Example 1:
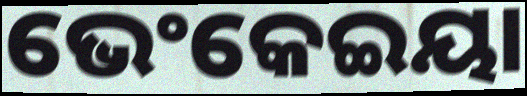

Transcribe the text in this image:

ଭେଂକେଇୟା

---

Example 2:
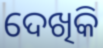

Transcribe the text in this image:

ଦେଖିକି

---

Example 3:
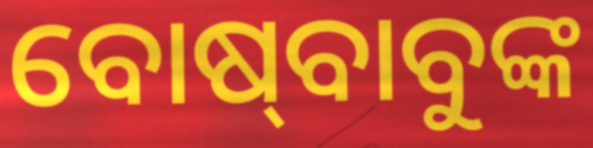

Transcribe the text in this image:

ବୋଷ୍‍ବାବୁଙ୍କ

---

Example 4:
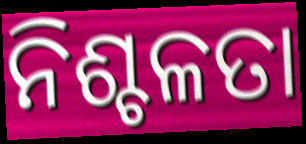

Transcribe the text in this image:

ନିଶ୍ଚଳତା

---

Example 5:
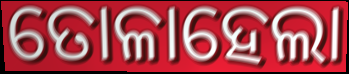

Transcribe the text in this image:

ତୋଳାହେଲା